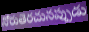
నోరుతెరచునప్పుడు